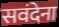
सवंदेना